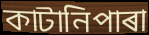
কাটানিপাৰা